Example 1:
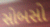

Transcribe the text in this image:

સોબસો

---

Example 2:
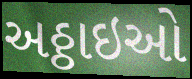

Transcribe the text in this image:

અઠ્ઠાઇઓ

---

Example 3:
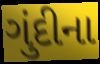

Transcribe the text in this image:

ગુંદીના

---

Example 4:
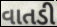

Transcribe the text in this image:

વાતડી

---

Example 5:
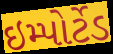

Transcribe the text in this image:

ઇમ્પોર્ટેડ